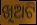
ଖିଅଟି